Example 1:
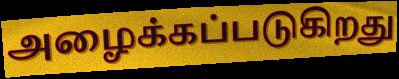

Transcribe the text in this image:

அழைக்கப்படுகிறது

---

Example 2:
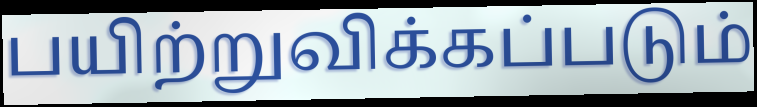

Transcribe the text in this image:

பயிற்றுவிக்கப்படும்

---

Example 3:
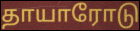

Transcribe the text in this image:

தாயாரோடு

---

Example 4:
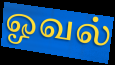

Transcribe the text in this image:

ஓவல்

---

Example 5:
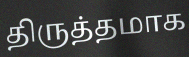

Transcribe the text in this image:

திருத்தமாக